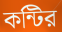
কন্টির